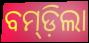
ବମ୍‍ଡ଼ିଲା